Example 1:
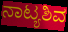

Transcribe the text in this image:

ನಾಟ್ಯಶಿವ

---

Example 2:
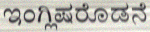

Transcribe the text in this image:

ಇಂಗ್ಲಿಷರೊಡನೆ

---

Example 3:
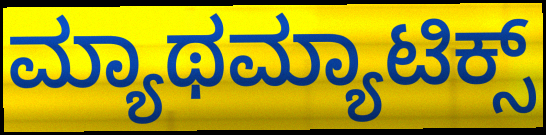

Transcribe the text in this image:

ಮ್ಯಾಥಮ್ಯಾಟಿಕ್ಸ್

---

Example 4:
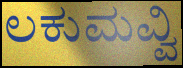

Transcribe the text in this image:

ಲಕುಮವ್ವಿ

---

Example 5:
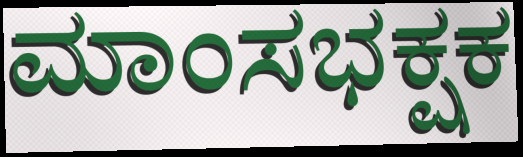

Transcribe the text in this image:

ಮಾಂಸಭಕ್ಷಕ